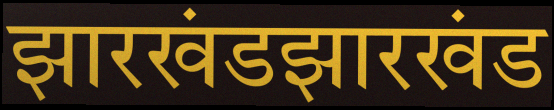
झारखंडझारखंड